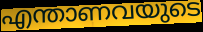
എന്താണവയുടെ